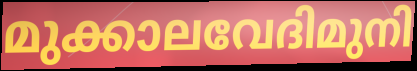
മുക്കാലവേദിമുനി